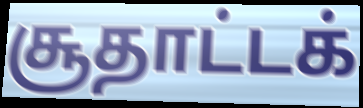
சூதாட்டக்